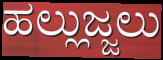
ಹಲ್ಲುಜ್ಜಲು